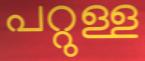
പറ്റുള്ള